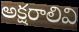
అక్షరాలివి